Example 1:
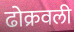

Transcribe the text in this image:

ढोक्रवली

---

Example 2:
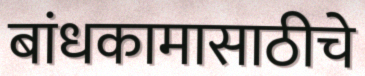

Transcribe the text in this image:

बांधकामासाठीचे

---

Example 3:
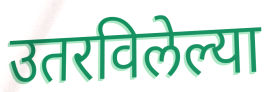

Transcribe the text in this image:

उतरविलेल्या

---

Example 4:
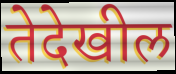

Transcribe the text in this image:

तेदेखील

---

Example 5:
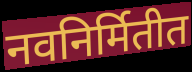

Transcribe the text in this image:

नवनिर्मितीत